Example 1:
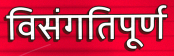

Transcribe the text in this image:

विसंगतिपूर्ण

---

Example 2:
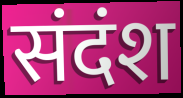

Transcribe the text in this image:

संदंश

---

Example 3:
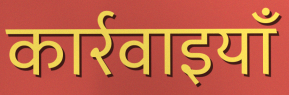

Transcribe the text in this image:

कार्रवाइयाँ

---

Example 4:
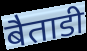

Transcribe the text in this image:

बैताडी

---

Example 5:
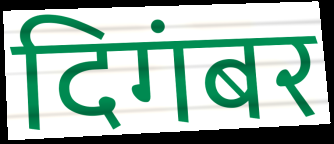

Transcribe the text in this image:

दिगंबर